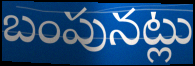
బంపునట్లు